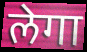
लेगा